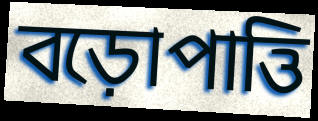
বড়োপাত্তি